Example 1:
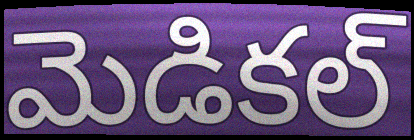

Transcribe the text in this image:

మెడికల్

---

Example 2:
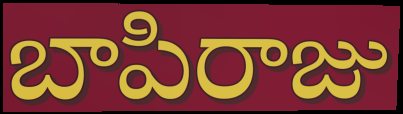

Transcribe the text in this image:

బాపిరాజు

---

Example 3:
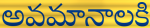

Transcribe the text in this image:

అవమానాలకి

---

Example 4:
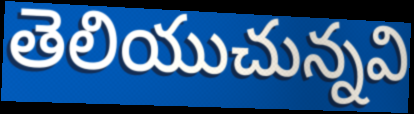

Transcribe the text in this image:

తెలియుచున్నవి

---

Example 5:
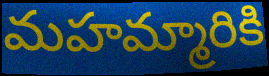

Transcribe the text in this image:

మహమ్మారికి